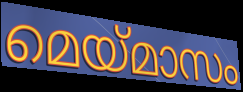
മെയ്മാസം